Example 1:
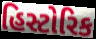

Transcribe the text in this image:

હિસ્ટોરિક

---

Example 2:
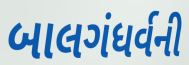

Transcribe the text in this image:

બાલગંધર્વની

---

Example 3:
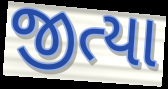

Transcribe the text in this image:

જીત્યા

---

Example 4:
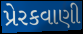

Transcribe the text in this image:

પ્રેરકવાણી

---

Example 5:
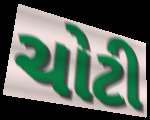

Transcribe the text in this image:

ચોટી